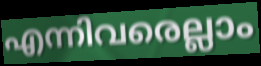
എന്നിവരെല്ലാം